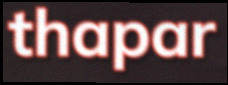
thapar